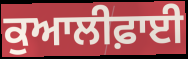
ਕੁਆਲੀਫ਼ਾਈ